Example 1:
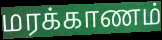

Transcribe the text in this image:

மரக்காணம்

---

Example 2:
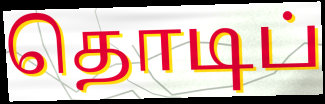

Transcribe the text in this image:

தொடிப்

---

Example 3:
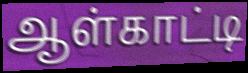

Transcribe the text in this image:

ஆள்காட்டி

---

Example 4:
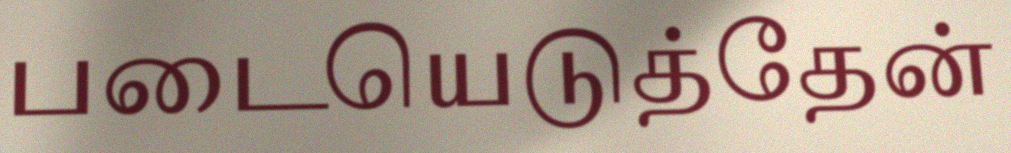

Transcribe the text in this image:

படையெடுத்தேன்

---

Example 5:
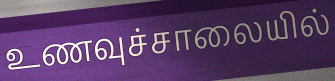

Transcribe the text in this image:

உணவுச்சாலையில்